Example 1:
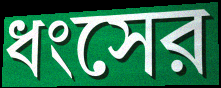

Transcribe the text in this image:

ধংসের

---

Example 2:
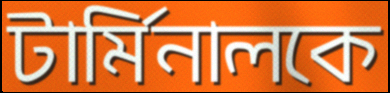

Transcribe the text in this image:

টার্মিনালকে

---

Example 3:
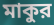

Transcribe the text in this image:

মাকুর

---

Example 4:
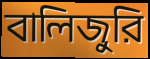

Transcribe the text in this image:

বালিজুরি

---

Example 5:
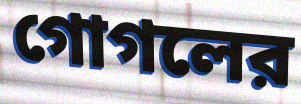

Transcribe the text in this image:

গোগলের